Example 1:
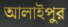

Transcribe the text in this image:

আলাইপুর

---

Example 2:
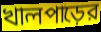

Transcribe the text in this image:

খালপাড়ের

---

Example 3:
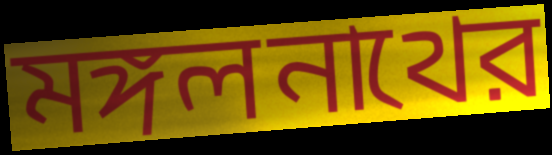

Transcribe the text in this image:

মঙ্গলনাথের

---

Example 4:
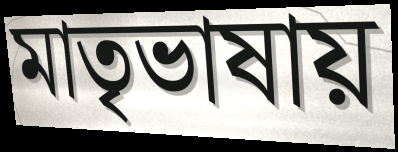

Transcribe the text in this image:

মাতৃভাষায়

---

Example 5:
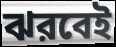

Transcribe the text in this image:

ঝরবেই